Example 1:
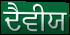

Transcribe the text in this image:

ਦੈਵੀਯ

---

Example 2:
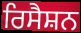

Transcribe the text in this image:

ਰਿਸੈਸ਼ਨ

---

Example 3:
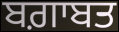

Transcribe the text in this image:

ਬਗ਼ਾਬਤ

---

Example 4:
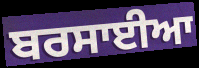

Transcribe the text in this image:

ਬਰਸਾਈਆ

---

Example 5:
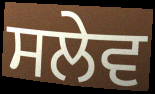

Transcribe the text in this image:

ਸਲੇਵ